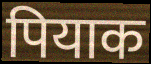
पियाक